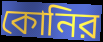
কোনির